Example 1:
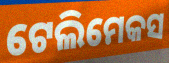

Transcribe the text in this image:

ଟେଲିମେକସ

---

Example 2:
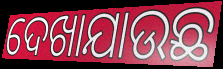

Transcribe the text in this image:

ଦେଖାଯାଉଛ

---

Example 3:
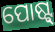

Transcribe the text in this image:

ପୋଷ୍ଟ୍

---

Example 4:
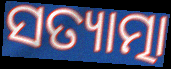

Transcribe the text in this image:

ସତ୍ୟାତ୍ମା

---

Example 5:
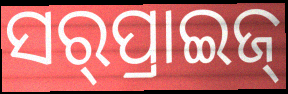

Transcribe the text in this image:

ସର୍‌ପ୍ରାଇଜ୍